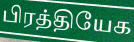
பிரத்தியேக